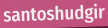
santoshudgir